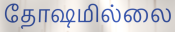
தோஷமில்லை